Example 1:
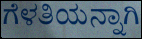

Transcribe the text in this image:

ಗೆಳತಿಯನ್ನಾಗಿ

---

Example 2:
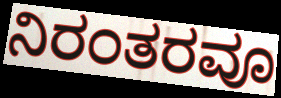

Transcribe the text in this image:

ನಿರಂತರವೂ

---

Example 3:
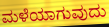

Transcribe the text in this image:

ಮಳೆಯಾಗುವುದು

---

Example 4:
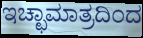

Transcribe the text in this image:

ಇಚ್ಛಾಮಾತ್ರದಿಂದ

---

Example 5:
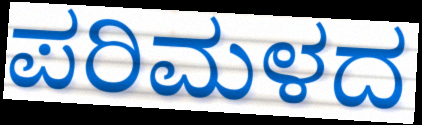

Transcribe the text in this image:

ಪರಿಮಳದ